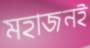
মহাজনই